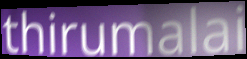
thirumalai